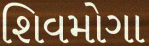
શિવમોગા